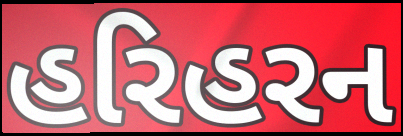
હરિહરન